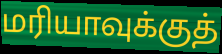
மரியாவுக்குத்